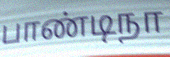
பாண்டிநா